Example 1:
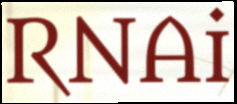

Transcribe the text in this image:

RNAi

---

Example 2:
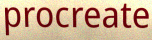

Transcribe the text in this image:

procreate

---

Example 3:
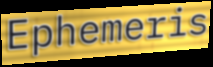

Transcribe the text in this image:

Ephemeris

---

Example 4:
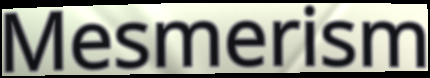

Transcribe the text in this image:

Mesmerism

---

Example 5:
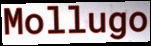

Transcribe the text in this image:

Mollugo